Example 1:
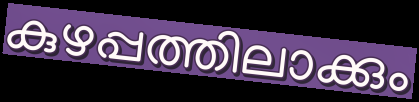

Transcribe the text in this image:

കുഴപ്പത്തിലാക്കും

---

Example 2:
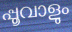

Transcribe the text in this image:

പ്പൂവാളും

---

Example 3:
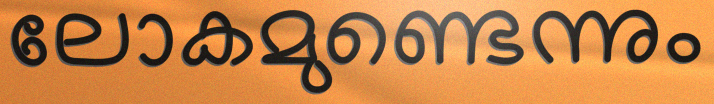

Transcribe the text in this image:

ലോകമുണ്ടെന്നും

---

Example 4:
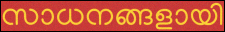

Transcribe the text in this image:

സാധനങ്ങളായി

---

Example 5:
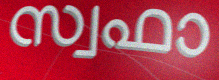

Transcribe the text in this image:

സ്വഫാ